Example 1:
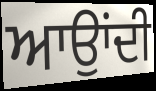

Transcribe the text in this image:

ਆਉਾਂਦੀ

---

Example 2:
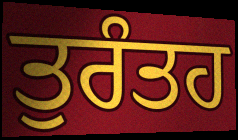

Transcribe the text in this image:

ਤੁਰੰਤਹ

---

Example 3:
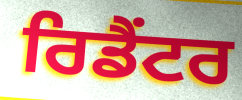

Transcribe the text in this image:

ਰਿਡੈਂਟਰ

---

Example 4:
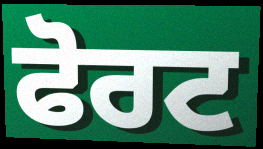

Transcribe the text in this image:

ਫੋਰਟ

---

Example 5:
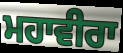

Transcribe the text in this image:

ਮਹਾਵੀਰਾ